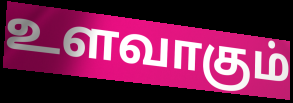
உளவாகும்